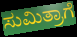
ಸುಮಿತ್ರಾಗೆ